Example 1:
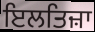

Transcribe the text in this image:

ਇਲਤਿਜ਼ਾ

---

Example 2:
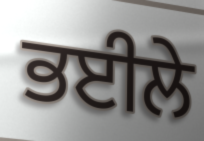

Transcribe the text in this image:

ਭਈਲੇ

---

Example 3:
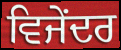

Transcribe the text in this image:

ਵਿਜੇਂਦਰ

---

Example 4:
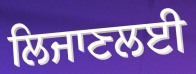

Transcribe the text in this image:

ਲਿਜਾਣਲਈ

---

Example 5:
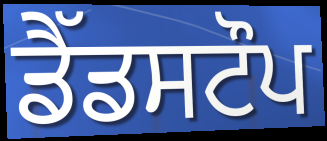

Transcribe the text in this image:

ਡੈੱਡਸਟੌਪ